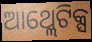
ଆଥ୍ଲେଟିକ୍ସ